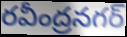
రవీంద్రనగర్